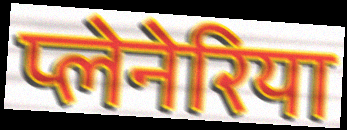
प्लेनेरिया